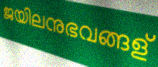
ജയിലനുഭവങ്ങള്